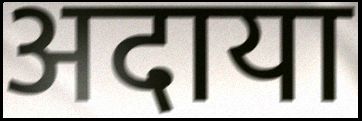
अदाया